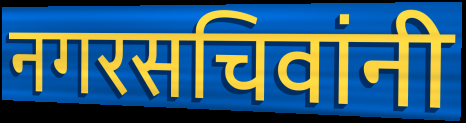
नगरसचिवांनी